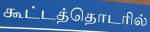
கூட்டத்தொடரில்